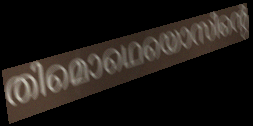
തിമൊഥെയൊസിന്റെ